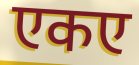
एकए